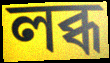
লব্ধ